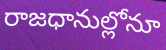
రాజధానుల్లోనూ